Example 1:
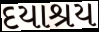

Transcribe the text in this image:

દયાશ્રય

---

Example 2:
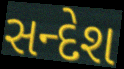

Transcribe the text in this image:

સન્દેશ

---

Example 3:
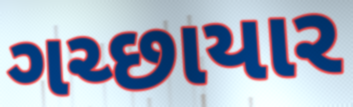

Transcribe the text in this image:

ગચ્છાયાર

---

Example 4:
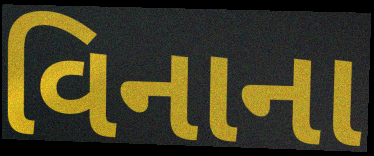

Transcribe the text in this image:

વિનાના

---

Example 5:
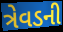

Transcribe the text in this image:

ત્રેવડની